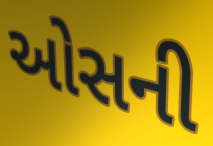
ઓસની